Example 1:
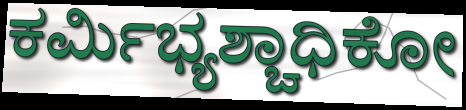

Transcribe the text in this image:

ಕರ್ಮಿಭ್ಯಶ್ಚಾಧಿಕೋ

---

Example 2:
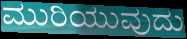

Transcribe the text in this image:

ಮುರಿಯುವುದು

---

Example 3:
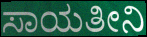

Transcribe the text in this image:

ಸಾಯತೀನಿ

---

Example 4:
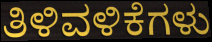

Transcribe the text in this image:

ತಿಳಿವಳಿಕೆಗಳು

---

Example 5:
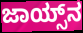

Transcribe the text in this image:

ಜಾಯ್ಸ್‌ನ